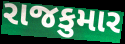
રાજકુમાર